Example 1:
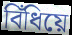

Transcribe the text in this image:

বিঁধিয়ে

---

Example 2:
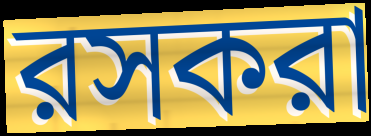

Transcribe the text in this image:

রসকরা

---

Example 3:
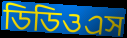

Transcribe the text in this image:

ডিডিওএস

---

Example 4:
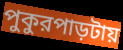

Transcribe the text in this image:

পুকুরপাড়টায়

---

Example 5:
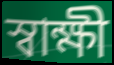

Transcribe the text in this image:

স্বাক্ষী